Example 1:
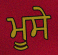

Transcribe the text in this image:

ਮੂਸੇ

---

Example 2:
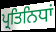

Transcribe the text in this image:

ਪ੍ਰਤਿਨਿਧਾਂ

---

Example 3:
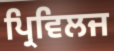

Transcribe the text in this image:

ਪ੍ਰਿਵਿਲਜ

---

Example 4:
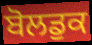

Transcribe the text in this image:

ਬੋਲਡੁਕ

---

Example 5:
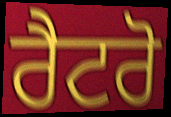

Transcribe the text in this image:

ਰੈਟਰੋ